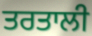
ਤਰਤਾਲੀ